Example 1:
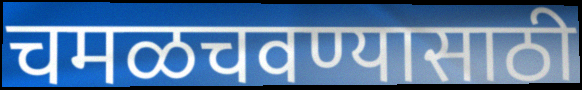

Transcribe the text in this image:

चमळचवण्यासाठी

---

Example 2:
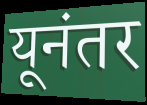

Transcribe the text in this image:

यूनंतर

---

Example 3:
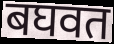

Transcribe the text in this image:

बघवत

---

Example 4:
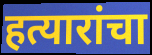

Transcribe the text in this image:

हत्यारांचा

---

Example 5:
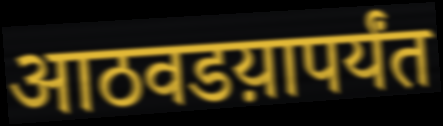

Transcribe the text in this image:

आठवडय़ापर्यंत